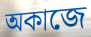
অকাজে